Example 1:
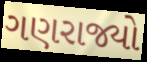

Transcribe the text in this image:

ગણરાજ્યો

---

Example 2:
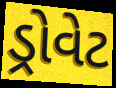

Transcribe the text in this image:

ડ્રોવેટ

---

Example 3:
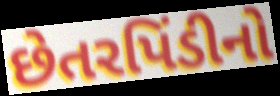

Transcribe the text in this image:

છેતરપિંડીનો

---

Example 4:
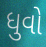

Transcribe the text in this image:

ધુવો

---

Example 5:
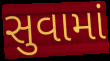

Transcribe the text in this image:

સુવામાં